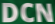
DCN